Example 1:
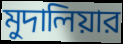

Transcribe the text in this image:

মুদালিয়ার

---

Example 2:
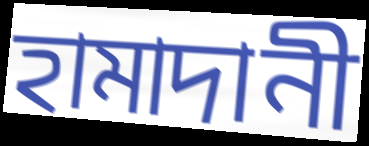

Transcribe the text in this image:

হামাদানী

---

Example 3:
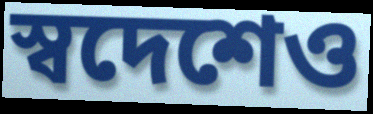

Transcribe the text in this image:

স্বদেশেও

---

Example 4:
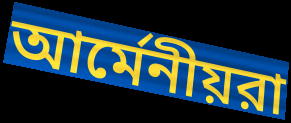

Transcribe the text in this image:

আর্মেনীয়রা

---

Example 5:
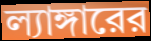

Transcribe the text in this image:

ল্যাঙ্গারের